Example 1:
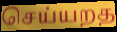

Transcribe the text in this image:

செய்யறத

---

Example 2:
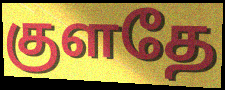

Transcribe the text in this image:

குளதே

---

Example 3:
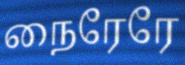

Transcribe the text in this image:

நைரேரே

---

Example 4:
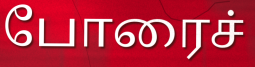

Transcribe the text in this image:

போரைச்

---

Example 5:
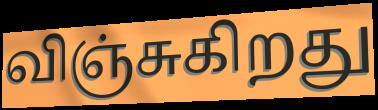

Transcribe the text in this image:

விஞ்சுகிறது